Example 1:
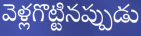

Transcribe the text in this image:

వెళ్లగొట్టినప్పుడు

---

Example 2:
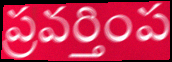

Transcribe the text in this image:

ప్రవర్తింప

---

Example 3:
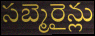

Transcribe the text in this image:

సబ్మెరైన్లు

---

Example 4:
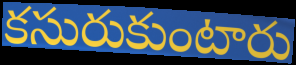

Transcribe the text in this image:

కసురుకుంటారు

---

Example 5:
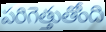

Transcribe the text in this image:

పరిగెత్తుతోంది